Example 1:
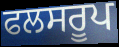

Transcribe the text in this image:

ਫਲਸਰੂਪ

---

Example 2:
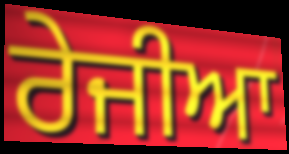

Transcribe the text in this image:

ਰੇਜੀਆ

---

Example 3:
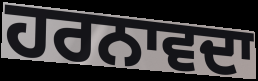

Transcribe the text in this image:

ਹਰਨਾਵਦਾ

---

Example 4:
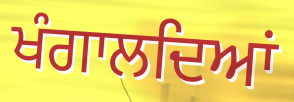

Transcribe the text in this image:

ਖੰਗਾਲਦਿਆਂ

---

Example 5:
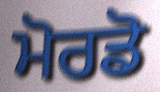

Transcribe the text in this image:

ਮੋਰਡੋ